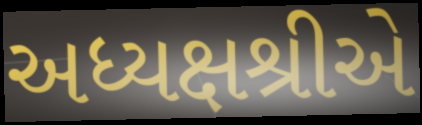
અધ્યક્ષશ્રીએ